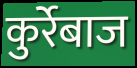
कुर्रेबाज